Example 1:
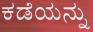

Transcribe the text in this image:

ಕಡೆಯನ್ನು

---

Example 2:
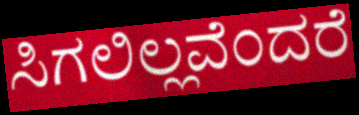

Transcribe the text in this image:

ಸಿಗಲಿಲ್ಲವೆಂದರೆ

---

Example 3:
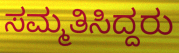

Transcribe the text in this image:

ಸಮ್ಮತಿಸಿದ್ದರು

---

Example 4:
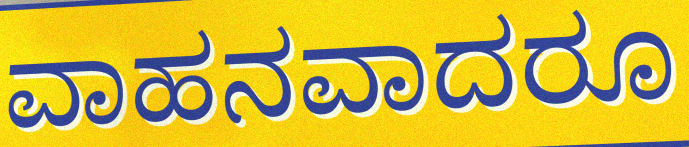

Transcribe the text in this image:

ವಾಹನವಾದರೂ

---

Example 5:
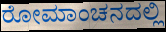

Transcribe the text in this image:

ರೋಮಾಂಚನದಲ್ಲಿ